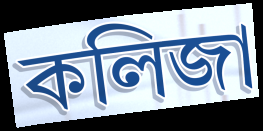
কলিজা